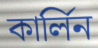
কার্লিন